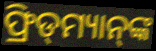
ଫ୍ରିଡ୍‌ମ୍ୟାନ୍‌ଙ୍କ